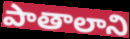
పాతాలాని